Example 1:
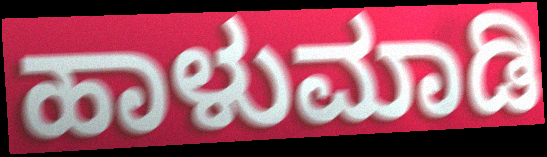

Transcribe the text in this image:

ಹಾಳುಮಾಡಿ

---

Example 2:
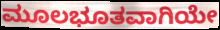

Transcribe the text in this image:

ಮೂಲಭೂತವಾಗಿಯೇ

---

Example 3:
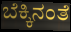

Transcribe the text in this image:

ಬೆಕ್ಕಿನಂತೆ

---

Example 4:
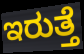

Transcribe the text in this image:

ಇರುತ್ತೆ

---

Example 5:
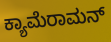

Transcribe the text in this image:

ಕ್ಯಾಮೆರಾಮನ್